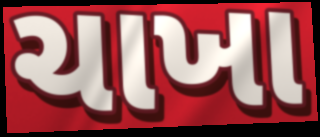
ચાખા